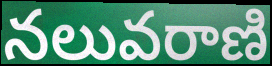
నలువరాణి